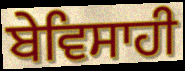
ਬੇਵਿਸਾਹੀ